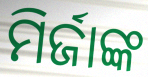
ମିର୍ଜାଙ୍କ